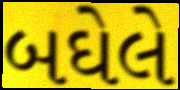
બઘેલે